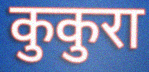
कुकुरा